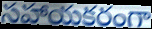
సహాయకరంగా